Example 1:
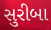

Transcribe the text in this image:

સુરીબા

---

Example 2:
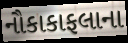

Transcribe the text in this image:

નૌકાકાફલાના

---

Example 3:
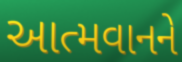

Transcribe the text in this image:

આત્મવાનને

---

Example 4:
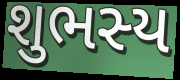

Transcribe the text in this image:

શુભસ્ય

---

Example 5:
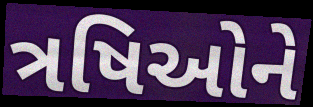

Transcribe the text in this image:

ત્રષિઓને